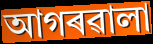
আগৰৱালা